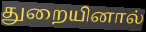
துறையினால்